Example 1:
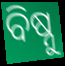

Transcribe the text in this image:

ବିଷ୍ନୁ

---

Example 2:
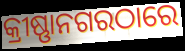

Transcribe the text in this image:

କ୍ରୀଷ୍ଣାନଗରଠାରେ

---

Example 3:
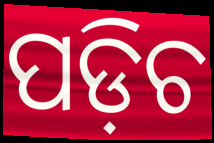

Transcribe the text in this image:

ପଡ଼ିଚ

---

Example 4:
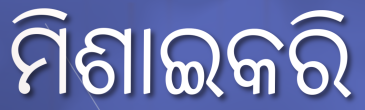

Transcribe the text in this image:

ମିଶାଇକରି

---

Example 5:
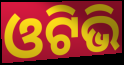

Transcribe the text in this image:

ଓଟିଭି